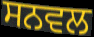
ਸਨਵਲ